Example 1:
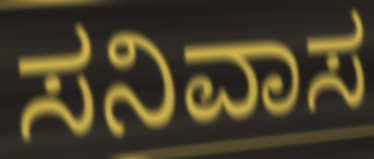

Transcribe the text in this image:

ಸನಿವಾಸ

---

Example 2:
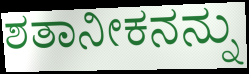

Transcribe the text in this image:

ಶತಾನೀಕನನ್ನು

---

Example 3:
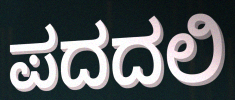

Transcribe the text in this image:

ಪದದಲಿ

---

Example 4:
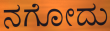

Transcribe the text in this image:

ನಗೋದು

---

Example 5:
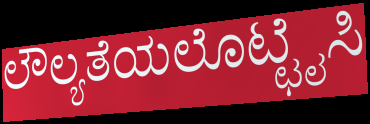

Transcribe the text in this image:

ಲೌಲ್ಯತೆಯಲೊಟ್ಟೈಸಿ